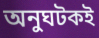
অনুঘটকই